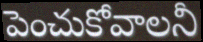
పెంచుకోవాలనీ